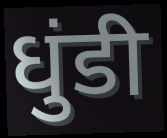
धुंडी